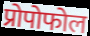
प्रोपोफोल